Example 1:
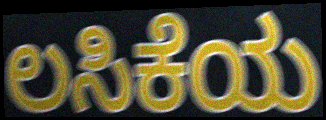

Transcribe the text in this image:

ಲಸಿಕೆಯ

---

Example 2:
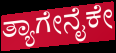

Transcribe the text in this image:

ತ್ಯಾಗೇನೈಕೇ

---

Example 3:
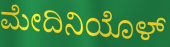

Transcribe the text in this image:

ಮೇದಿನಿಯೊಳ್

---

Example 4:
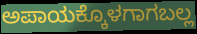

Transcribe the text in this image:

ಅಪಾಯಕ್ಕೊಳಗಾಗಬಲ್ಲ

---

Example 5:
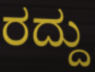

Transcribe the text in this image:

ರದ್ದು